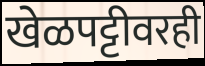
खेळपट्टीवरही